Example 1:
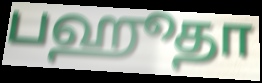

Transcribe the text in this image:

பஹூதா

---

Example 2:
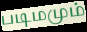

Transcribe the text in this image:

படிமமும்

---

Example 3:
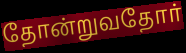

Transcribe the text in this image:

தோன்றுவதோர்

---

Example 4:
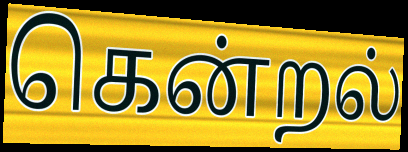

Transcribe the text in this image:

கென்றல்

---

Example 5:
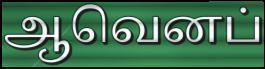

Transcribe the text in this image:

ஆவெனப்